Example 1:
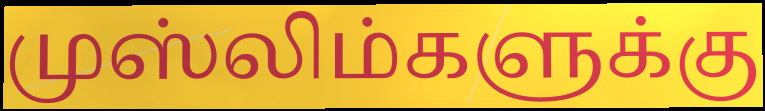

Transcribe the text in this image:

முஸ்லிம்களுக்கு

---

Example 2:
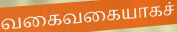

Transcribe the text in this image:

வகைவகையாகச்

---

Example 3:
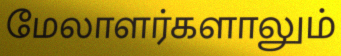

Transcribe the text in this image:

மேலாளர்களாலும்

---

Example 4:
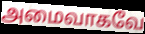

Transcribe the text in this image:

அமைவாகவே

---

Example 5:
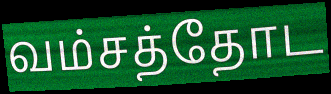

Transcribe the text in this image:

வம்சத்தோட